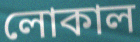
লোকাল